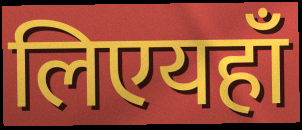
लिएयहाँ